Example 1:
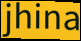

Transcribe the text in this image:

jhina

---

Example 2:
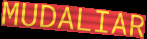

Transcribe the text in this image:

MUDALIAR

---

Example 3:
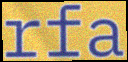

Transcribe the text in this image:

rfa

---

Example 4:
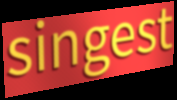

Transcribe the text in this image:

singest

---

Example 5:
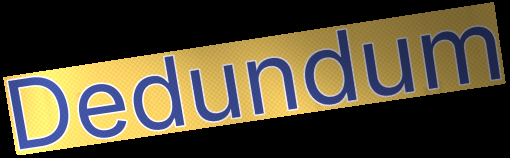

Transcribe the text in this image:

Dedundum